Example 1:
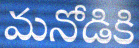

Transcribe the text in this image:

మనోడికి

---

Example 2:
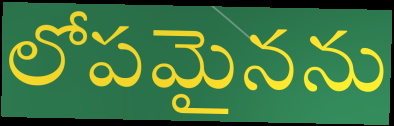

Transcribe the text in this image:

లోపమైనను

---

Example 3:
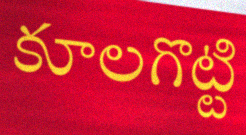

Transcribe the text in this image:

కూలగొట్టి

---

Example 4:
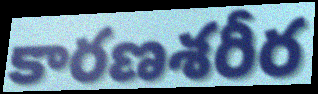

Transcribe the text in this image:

కారణశరీర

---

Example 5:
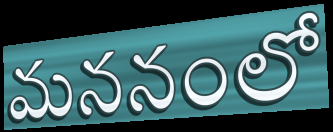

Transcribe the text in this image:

మననంలో